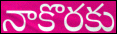
నాకొరకు